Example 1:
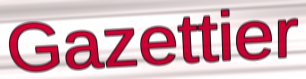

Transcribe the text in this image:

Gazettier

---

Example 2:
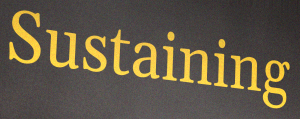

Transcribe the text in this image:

Sustaining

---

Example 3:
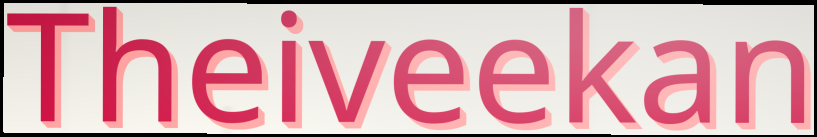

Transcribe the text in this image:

Theiveekan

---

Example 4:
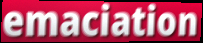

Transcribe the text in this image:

emaciation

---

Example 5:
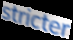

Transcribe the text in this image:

stricter